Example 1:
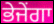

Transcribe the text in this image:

ਭੇਜੇਂਗਾ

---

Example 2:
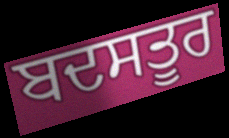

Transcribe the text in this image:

ਬਦਸਤੂਰ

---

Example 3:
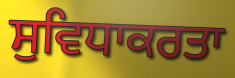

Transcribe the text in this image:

ਸੁਵਿਧਾਕਰਤਾ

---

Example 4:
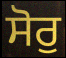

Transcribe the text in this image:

ਸੋਰੁ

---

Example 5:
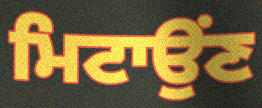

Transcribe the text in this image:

ਮਿਟਾਉਂਣ